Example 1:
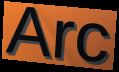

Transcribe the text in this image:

Arc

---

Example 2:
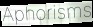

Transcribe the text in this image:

Aphorisms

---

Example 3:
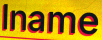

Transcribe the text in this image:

lname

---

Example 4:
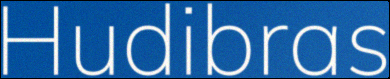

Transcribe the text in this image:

Hudibras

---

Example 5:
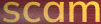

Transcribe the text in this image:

scam